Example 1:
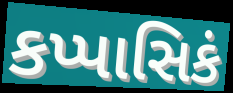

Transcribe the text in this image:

કપ્પાસિકં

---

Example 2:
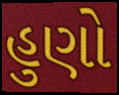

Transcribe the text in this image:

હુણો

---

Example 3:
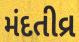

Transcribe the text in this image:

મંદતીવ્ર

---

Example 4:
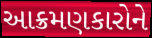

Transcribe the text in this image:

આક્રમણકારોને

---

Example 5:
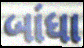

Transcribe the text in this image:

બાંધા